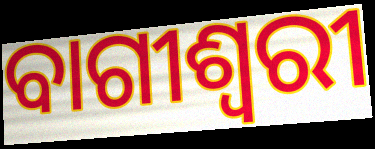
ବାଗୀଶ୍ୱରୀ